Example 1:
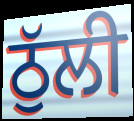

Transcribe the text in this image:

ਠੁੱਲੀ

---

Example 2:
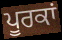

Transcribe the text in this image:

ਪੂਰਕਾਂ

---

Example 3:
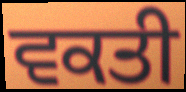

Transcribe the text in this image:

ਵਕਤੀ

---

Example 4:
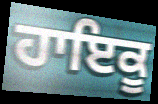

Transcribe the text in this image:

ਹਾਇਕੂ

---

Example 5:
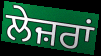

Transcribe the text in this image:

ਲੇਜ਼ਰਾਂ